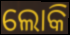
ଲୋକି